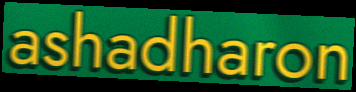
ashadharon